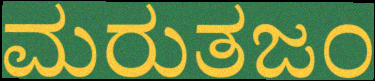
ಮರುತಜಂ